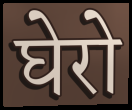
घेरो